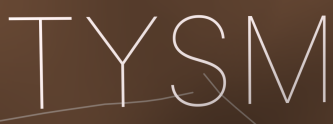
TYSM